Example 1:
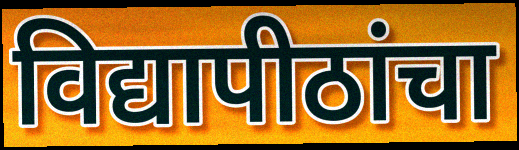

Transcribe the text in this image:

विद्यापीठांचा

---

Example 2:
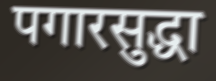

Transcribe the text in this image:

पगारसुद्धा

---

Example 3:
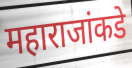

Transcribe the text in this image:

महाराजांकडे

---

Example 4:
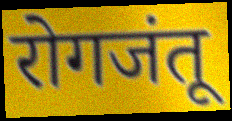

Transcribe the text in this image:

रोगजंतू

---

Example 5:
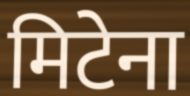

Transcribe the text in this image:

मिटेना